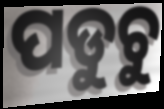
ପଡୁଚୁ